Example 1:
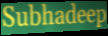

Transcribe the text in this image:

Subhadeep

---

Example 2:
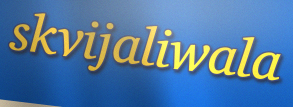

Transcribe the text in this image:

skvijaliwala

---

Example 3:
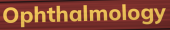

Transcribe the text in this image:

Ophthalmology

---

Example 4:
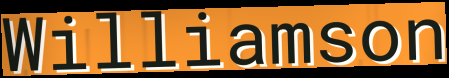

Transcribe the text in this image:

Williamson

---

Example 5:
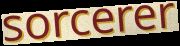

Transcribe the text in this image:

sorcerer